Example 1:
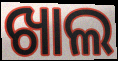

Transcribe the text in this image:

ଖାଲ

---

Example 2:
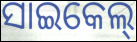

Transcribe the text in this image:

ସାଇକେଲ୍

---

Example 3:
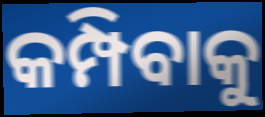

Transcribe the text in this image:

କମ୍ପିବାକୁ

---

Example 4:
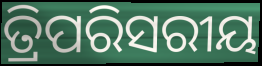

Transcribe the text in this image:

ତ୍ରିପରିସରୀୟ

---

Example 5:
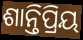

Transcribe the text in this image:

ଶାନ୍ତିପ୍ରିୟ